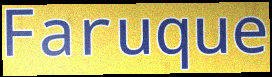
Faruque